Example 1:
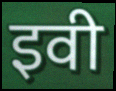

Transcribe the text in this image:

इवी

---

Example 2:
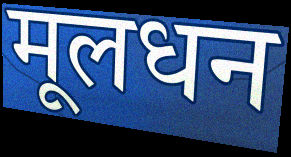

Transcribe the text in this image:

मूलधन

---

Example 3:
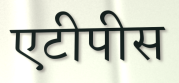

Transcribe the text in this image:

एटीपीस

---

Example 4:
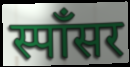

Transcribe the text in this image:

स्पॉंसर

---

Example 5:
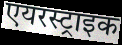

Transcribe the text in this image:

एयरस्ट्राइक